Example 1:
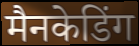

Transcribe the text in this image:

मैनकेडिंग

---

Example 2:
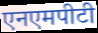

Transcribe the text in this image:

एनएमपीटी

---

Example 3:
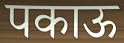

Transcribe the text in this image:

पकाऊ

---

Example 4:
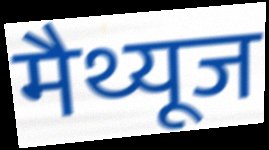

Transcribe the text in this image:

मैथ्यूज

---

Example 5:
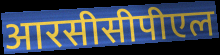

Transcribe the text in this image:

आरसीसीपीएल